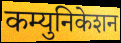
कम्युनिकेशन